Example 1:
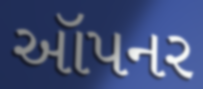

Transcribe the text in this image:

ઑપનર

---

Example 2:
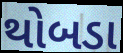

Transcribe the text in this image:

થોબડા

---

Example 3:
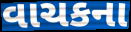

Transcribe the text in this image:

વાચકના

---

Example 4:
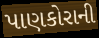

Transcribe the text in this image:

પાણકોરાની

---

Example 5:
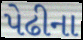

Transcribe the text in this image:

પેઢીના